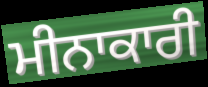
ਮੀਨਾਕਾਰੀ